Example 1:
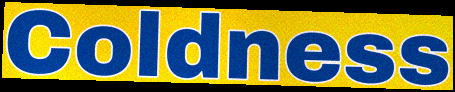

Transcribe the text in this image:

Coldness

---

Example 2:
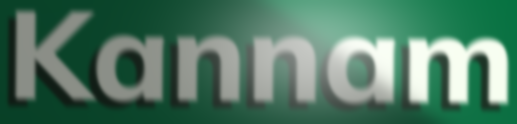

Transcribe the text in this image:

Kannam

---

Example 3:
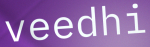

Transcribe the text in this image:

veedhi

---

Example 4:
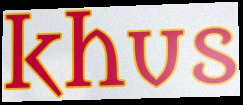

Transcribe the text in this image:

khus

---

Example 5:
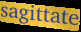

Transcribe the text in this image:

sagittate